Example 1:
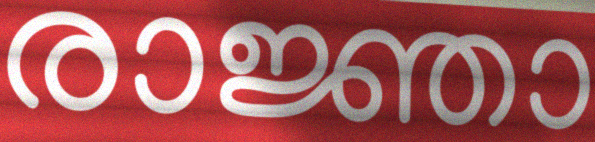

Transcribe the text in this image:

രാജ്ഞാ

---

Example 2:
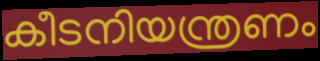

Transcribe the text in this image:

കീടനിയന്ത്രണം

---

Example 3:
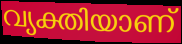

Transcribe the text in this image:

വ്യക്തിയാണ്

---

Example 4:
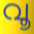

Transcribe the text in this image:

വൂ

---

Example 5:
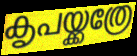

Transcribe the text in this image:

കൃപയ്ക്കത്രേ